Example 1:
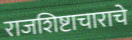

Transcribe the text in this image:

राजशिष्टाचाराचे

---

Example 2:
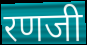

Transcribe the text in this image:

रणजी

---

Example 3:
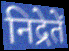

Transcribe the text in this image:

निद्रेतें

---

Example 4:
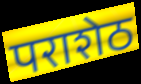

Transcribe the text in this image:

पराशेठ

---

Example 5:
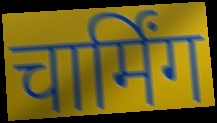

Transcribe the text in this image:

चार्मिंग